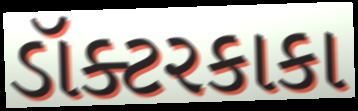
ડૉક્ટરકાકા